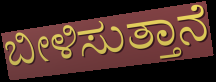
ಬೀಳಿಸುತ್ತಾನೆ